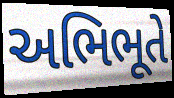
અભિભૂતે